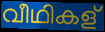
വീഥികള്